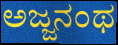
ಅಜ್ಜನಂಥ